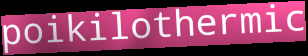
poikilothermic